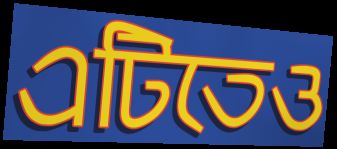
এটিতেও